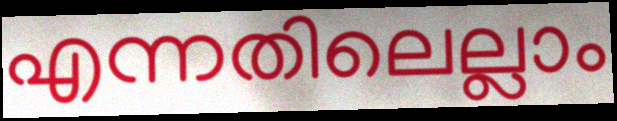
എന്നതിലെല്ലാം